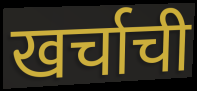
खर्चाची